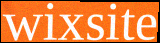
wixsite